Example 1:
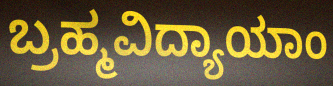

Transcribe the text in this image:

ಬ್ರಹ್ಮವಿದ್ಯಾಯಾಂ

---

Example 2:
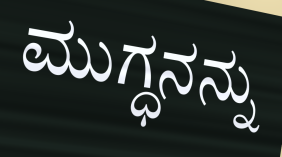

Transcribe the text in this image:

ಮುಗ್ಧನನ್ನು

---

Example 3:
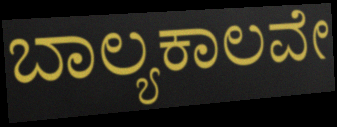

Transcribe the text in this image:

ಬಾಲ್ಯಕಾಲವೇ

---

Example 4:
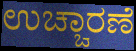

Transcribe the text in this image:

ಉಚ್ಚಾರಣೆ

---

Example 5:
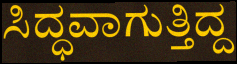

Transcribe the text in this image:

ಸಿದ್ಧವಾಗುತ್ತಿದ್ದ